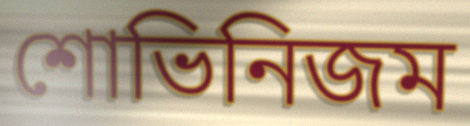
শোভিনিজম